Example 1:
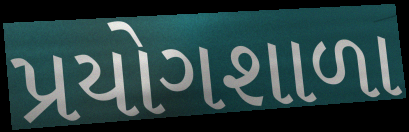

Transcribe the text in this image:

પ્રયોગશાળા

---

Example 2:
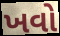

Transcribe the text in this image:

ખવો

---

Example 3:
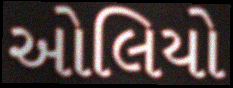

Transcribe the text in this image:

ઓલિયો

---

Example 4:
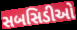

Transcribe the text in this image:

સબસિડીઓ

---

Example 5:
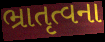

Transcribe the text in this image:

ભ્રાતૃત્વના